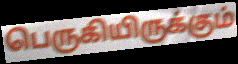
பெருகியிருக்கும்